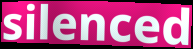
silenced